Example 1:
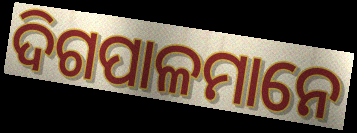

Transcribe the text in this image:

ଦିଗପାଳମାନେ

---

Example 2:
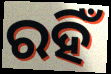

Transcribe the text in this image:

ରହିଁ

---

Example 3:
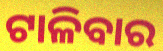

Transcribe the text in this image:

ଟାଳିବାର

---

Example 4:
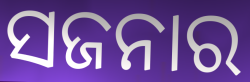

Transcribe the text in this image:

ସଜନାର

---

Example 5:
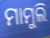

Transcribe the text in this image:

ମାମୁଲି